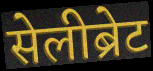
सेलीब्रेट